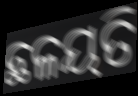
ଛଳୟତି